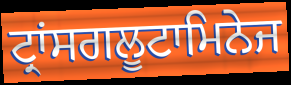
ਟ੍ਰਾਂਸਗਲੂਟਾਮਿਨੇਜ